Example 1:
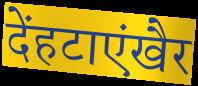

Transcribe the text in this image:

देंहटाएंखैर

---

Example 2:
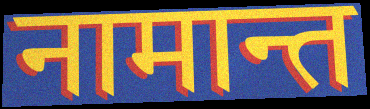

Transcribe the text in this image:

नामान्त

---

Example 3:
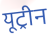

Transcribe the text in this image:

यूट्रीन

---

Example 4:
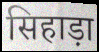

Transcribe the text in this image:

सिहाड़ा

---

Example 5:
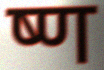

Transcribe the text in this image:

ष्ण